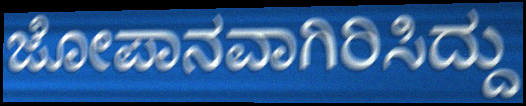
ಜೋಪಾನವಾಗಿರಿಸಿದ್ದು